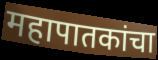
महापातकांचा